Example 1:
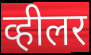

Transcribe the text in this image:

व्हीलर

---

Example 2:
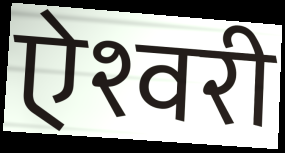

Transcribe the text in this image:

ऐश्वरी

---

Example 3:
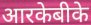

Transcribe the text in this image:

आरकेबीके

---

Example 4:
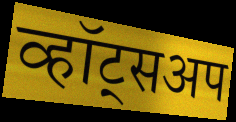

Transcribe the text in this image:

व्हॉट्सअप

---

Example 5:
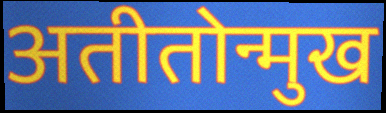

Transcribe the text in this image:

अतीतोन्मुख